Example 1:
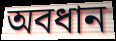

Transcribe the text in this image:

অবধান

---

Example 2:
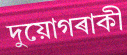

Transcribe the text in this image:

দুয়োগৰাকী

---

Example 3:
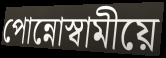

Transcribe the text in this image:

পোন্নোস্বামীয়ে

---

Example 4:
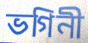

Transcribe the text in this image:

ভগিনী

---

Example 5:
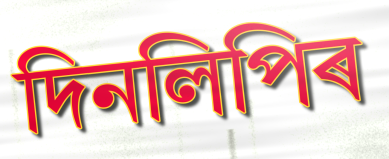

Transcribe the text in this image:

দিনলিপিৰ